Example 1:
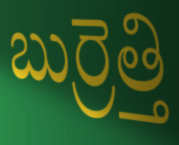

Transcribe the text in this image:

బుర్రెత్తి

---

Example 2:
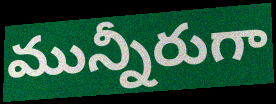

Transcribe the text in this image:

మున్నీరుగా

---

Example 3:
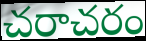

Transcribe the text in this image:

చరాచరం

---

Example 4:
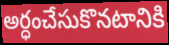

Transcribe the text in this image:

అర్ధంచేసుకొనటానికి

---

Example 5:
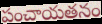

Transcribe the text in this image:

పంచాయతనం